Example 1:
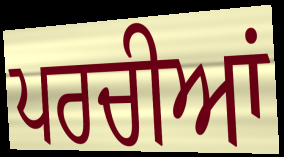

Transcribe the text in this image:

ਪਰਚੀਆਂ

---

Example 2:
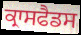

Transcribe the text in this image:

ਕ੍ਰਾਸਫੈਡਸ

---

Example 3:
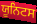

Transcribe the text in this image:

ਯੂਨਿਟਸ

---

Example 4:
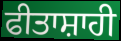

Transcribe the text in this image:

ਫੀਤਾਸ਼ਾਹੀ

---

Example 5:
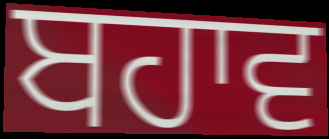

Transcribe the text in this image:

ਬਹਾਵ